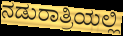
ನಡುರಾತ್ರಿಯಲ್ಲಿ